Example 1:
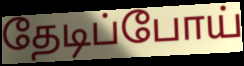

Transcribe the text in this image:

தேடிப்போய்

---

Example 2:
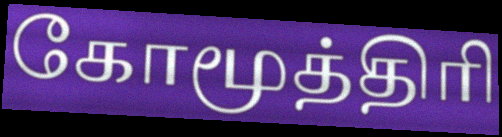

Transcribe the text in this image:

கோமூத்திரி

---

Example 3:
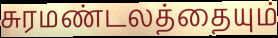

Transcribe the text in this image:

சுரமண்டலத்தையும்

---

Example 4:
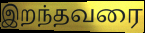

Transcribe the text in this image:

இறந்தவரை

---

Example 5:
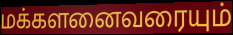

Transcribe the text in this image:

மக்களனைவரையும்